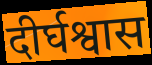
दीर्घश्वास